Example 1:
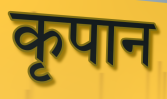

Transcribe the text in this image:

कृपान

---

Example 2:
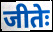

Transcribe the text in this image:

जीतेः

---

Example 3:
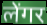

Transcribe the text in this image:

लेंगर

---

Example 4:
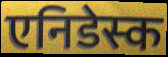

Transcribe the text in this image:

एनिडेस्क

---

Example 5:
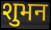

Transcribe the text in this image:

शुभन